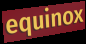
equinox